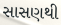
સાસણથી